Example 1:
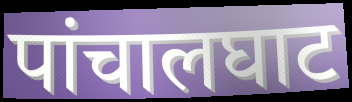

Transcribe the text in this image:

पांचालघाट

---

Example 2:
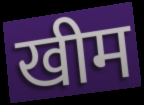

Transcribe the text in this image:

खीम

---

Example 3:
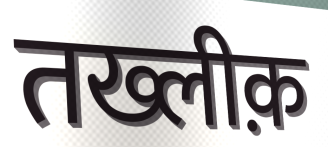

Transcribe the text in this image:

तख्लीक़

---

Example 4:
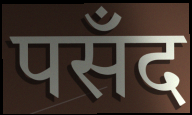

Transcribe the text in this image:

पसँद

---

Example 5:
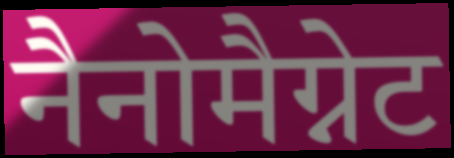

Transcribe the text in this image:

नैनोमैग्नेट